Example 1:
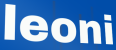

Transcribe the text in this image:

leoni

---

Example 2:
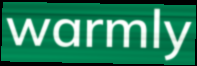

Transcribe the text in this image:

warmly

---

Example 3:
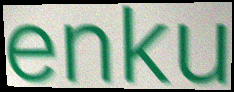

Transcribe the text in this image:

enku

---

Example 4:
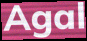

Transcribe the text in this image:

Agal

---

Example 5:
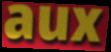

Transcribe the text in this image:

aux